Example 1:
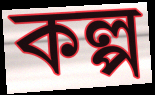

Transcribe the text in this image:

কল্প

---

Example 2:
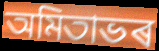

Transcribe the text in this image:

অমিতাভৰ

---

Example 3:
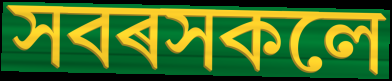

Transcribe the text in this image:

সবৰসকলে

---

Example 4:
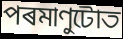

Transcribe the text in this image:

পৰমাণুটোত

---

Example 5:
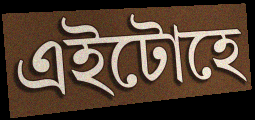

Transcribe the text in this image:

এইটোহে